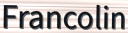
Francolin